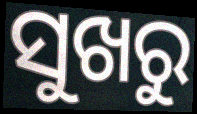
ସୁଖରୁ